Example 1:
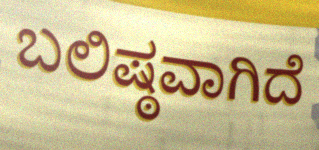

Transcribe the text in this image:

ಬಲಿಷ್ಠವಾಗಿದೆ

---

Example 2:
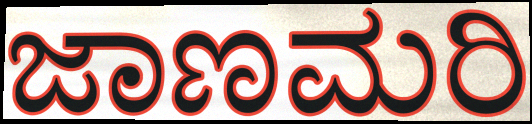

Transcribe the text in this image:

ಜಾಣಮರಿ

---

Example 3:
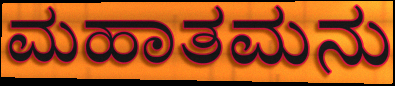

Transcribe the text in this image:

ಮಹಾತಮನು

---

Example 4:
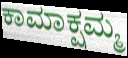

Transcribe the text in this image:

ಕಾಮಾಕ್ಷಮ್ಮ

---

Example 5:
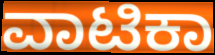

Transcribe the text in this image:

ವಾಟಿಕಾ